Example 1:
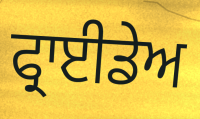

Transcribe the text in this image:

ਫ੍ਰਾਈਡੇਅ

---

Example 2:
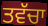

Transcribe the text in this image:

ਤਵੱਚਾ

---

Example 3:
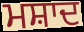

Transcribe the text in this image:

ਮਸ਼ਾਦ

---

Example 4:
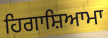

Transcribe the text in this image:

ਹਿਗਾਸ਼ਿਆਮਾ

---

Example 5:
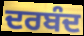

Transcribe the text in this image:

ਦਰਬੰਦ